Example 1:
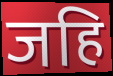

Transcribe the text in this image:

जहि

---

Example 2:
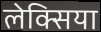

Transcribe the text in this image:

लेक्सिया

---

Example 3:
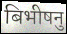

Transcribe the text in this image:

बिभीषनु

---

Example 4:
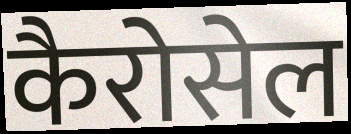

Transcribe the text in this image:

कैरोसेल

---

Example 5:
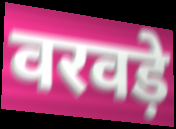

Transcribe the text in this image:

वरवड़े